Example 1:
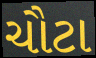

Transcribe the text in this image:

ચૌટા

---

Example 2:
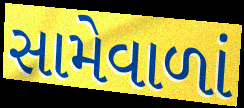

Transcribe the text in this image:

સામેવાળાં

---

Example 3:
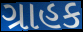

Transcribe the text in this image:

ગ્રાહક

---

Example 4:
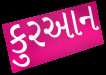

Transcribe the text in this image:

કુરઆન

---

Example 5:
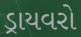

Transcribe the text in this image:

ડ્રાયવરો